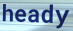
heady